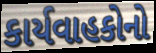
કાર્યવાહકોનો